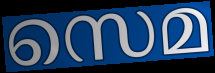
സെമ